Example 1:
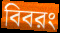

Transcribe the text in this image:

বিবরং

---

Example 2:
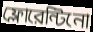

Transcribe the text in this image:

ফ্লোরেন্টিনো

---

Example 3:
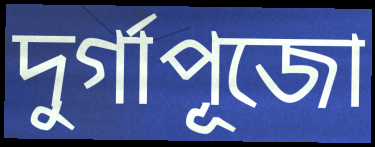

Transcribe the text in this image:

দুর্গাপূজো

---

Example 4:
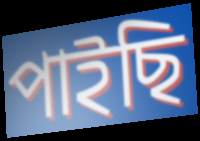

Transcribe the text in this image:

পাইছি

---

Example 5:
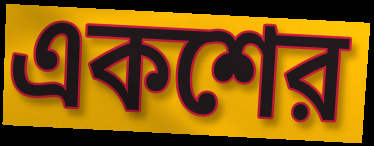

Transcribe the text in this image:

একশের